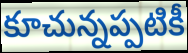
కూచున్నప్పటికీ